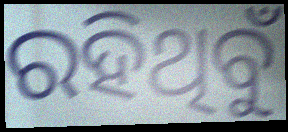
ରହିଥିବୁଁ